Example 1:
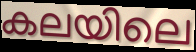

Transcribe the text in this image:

കലയിലെ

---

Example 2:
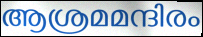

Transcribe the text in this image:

ആശ്രമമന്ദിരം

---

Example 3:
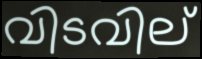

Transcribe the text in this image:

വിടവില്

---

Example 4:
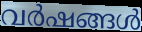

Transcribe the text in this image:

വർഷങ്ങൾ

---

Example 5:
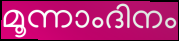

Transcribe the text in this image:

മൂന്നാംദിനം